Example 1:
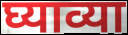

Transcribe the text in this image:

घ्याव्या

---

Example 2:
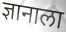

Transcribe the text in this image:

ज्ञानाला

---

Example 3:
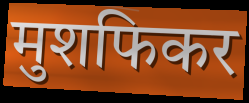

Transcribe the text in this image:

मुशफिकर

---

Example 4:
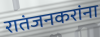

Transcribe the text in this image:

रातंजनकरांना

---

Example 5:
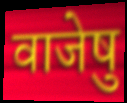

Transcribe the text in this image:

वाजेषु